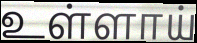
உள்ளாய்